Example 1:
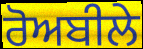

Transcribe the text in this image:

ਰੋਅਬੀਲੇ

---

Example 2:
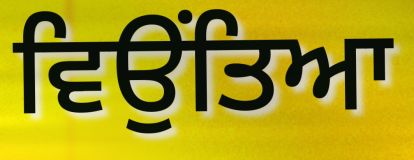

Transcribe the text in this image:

ਵਿਉਂਤਿਆ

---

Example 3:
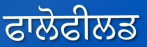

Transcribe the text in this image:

ਫਾਲੋਫੀਲਡ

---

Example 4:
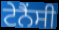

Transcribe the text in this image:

ਟੇਨੈਂਸੀ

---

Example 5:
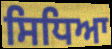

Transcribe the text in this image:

ਸਿਧਿਆ